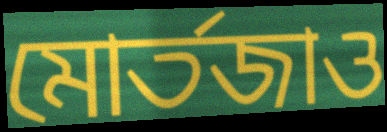
মোর্তজাও